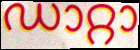
ഡാറ്റാ